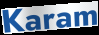
Karam